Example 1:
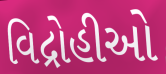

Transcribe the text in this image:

વિદ્રોહીઓ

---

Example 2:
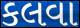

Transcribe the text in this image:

કલવા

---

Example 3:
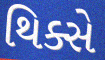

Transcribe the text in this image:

થિક્સે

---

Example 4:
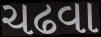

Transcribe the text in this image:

ચઢવા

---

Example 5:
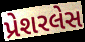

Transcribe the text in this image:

પ્રેશરલેસ